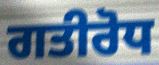
ਗਤੀਰੋਧ